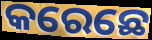
କରେଛେ